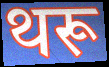
थरू